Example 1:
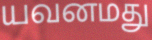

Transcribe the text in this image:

யவனமது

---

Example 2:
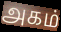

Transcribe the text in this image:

அகம்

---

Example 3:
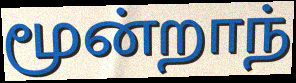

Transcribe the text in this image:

மூன்றாந்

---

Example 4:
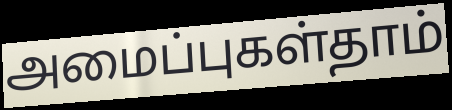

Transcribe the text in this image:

அமைப்புகள்தாம்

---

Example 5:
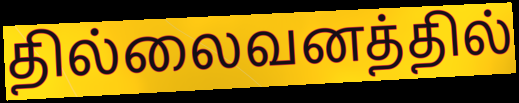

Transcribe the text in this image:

தில்லைவனத்தில்